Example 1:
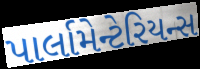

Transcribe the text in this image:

પાર્લામેન્ટેરિયન્સ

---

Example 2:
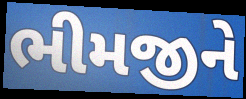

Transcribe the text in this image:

ભીમજીને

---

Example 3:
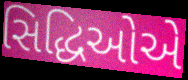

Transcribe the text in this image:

સિદ્ધિઓએ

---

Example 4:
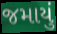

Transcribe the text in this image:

જમાયું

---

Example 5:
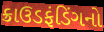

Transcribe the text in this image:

ક્રાઉડફંડિંગનો